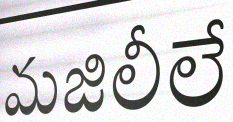
మజిలీలే